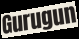
Gurugun